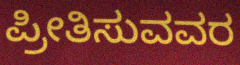
ಪ್ರೀತಿಸುವವರ